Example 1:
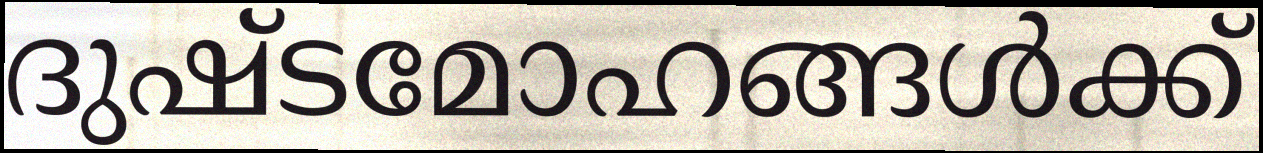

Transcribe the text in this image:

ദുഷ്ടമോഹങ്ങൾക്ക്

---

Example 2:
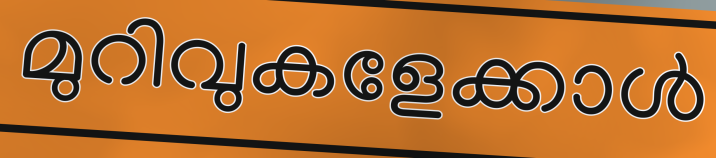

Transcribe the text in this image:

മുറിവുകളേക്കാൾ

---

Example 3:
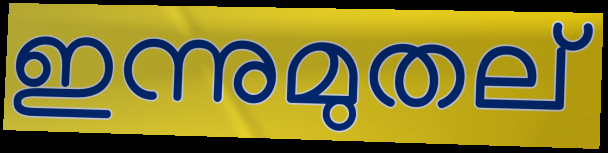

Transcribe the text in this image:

ഇന്നുമുതല്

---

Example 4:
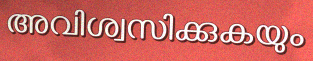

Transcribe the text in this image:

അവിശ്വസിക്കുകയും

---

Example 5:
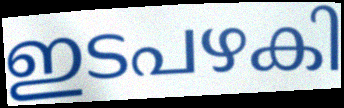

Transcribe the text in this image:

ഇടപഴകി